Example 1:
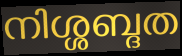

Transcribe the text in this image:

നിശ്ശബ്ദത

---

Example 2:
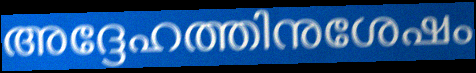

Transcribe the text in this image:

അദ്ദേഹത്തിനുശേഷം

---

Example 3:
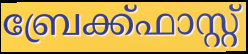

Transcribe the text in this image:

ബ്രേക്ക്ഫാസ്റ്റ്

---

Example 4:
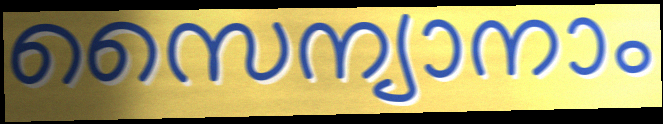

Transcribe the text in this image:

സൈന്യാനാം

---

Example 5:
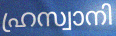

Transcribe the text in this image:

ഹ്രസ്വാനി